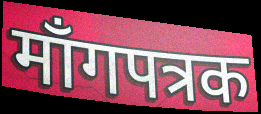
माँगपत्रक